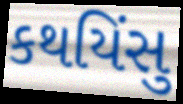
કથયિંસુ